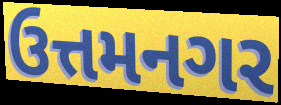
ઉત્તમનગર